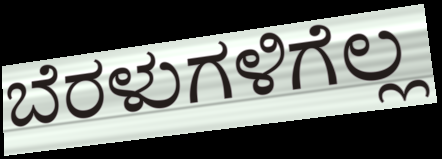
ಬೆರಳುಗಳಿಗೆಲ್ಲ